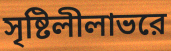
সৃষ্টিলীলাভরে